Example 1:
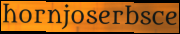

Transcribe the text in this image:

hornjoserbsce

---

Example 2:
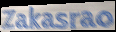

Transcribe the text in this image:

Zakasrao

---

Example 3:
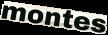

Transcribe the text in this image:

montes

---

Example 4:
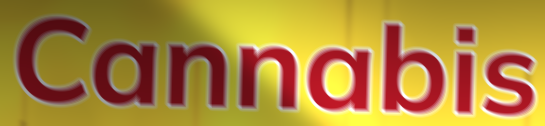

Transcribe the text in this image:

Cannabis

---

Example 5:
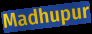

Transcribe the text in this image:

Madhupur